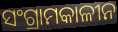
ସଂଗ୍ରାମକାଳୀନ